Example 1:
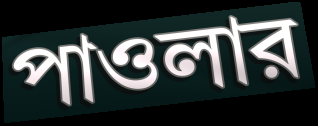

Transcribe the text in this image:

পাওলার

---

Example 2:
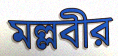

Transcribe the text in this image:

মল্লবীর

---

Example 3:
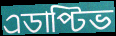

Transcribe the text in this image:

এডাপ্টিভ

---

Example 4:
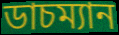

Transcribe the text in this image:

ডাচম্যান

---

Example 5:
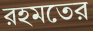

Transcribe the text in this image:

রহমতের